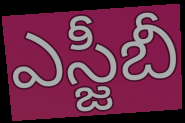
ఎస్జీబీ